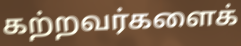
கற்றவர்களைக்